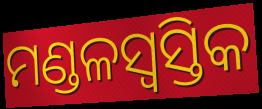
ମଣ୍ଡଳସ୍ୱସ୍ତିକ